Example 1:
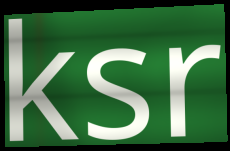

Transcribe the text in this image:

ksr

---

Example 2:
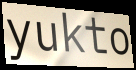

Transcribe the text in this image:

yukto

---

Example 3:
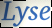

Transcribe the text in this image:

Lyse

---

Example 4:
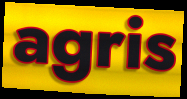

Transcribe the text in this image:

agris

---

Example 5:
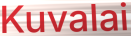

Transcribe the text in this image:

Kuvalai